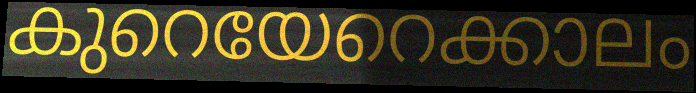
കുറെയേറെക്കാലം